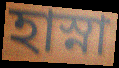
হাস্না